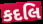
કદલિ